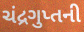
ચંદ્રગુપ્તની